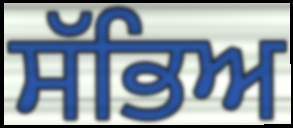
ਸੱਭਿਅ